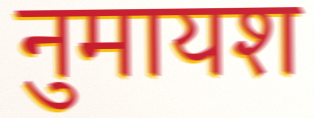
नुमायश